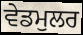
ਵੇਡਮੁਲਰ